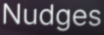
Nudges